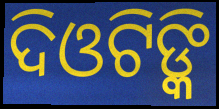
ଦିଓଟିଙ୍କି